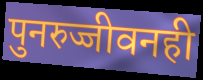
पुनरुज्जीवनही